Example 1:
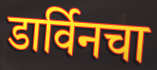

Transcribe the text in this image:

डार्विनचा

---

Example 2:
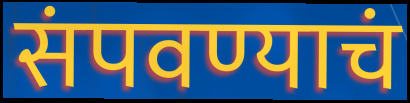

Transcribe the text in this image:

संपवण्याचं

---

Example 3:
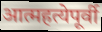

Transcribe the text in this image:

आत्महत्येपूर्वी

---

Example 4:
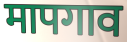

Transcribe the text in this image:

मापगाव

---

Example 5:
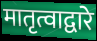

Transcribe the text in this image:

मातृत्वाद्वारे